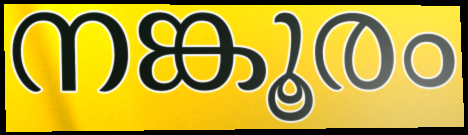
നങ്കൂരം